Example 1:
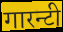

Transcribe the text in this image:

गारन्टी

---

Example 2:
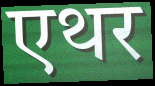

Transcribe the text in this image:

एथर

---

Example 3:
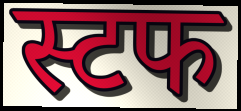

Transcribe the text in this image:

स्टफ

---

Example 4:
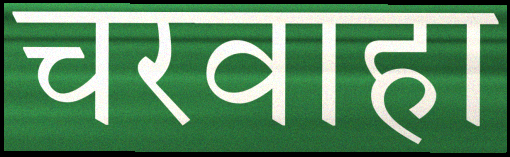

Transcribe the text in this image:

चरवाहा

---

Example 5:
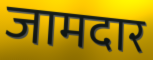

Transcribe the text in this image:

जामदार